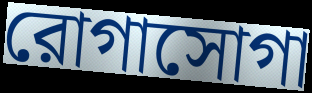
রোগাসোগা